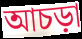
আচড়া